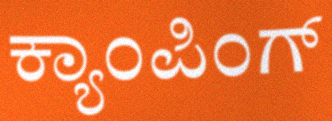
ಕ್ಯಾಂಪಿಂಗ್